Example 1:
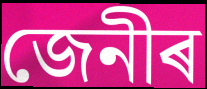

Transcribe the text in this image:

জেনীৰ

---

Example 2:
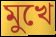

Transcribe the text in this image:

মুখে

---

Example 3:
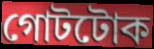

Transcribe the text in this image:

গোটটোক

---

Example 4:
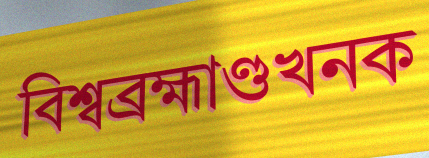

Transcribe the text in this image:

বিশ্বব্ৰহ্মাণ্ডখনক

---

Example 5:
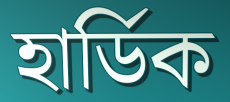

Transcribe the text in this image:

হাৰ্ডিক